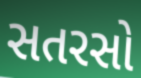
સતરસો